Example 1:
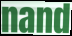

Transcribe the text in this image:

nand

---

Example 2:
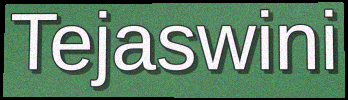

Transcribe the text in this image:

Tejaswini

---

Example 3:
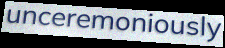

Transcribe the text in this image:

unceremoniously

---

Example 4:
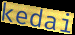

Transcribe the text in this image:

kedai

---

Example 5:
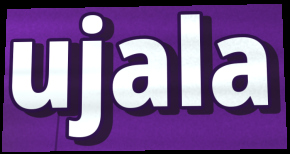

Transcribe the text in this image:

ujala